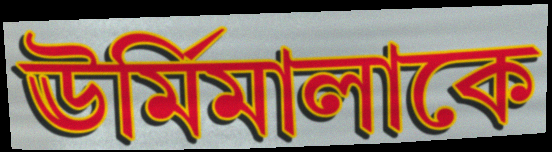
ঊর্মিমালাকে